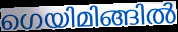
ഗെയിമിങ്ങിൽ